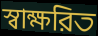
স্বাক্ষরিত